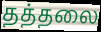
தத்தலை